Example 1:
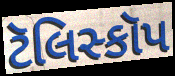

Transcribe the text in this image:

ટૅલિસ્કૉપ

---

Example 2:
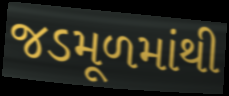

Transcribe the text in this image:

જડમૂળમાંથી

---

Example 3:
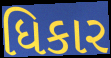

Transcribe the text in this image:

ધિકાર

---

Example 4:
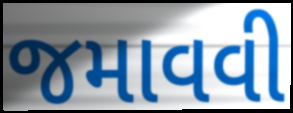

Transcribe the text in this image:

જમાવવી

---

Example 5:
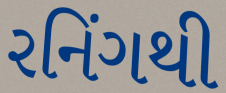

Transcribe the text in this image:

રનિંગથી